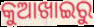
କୁଆଖାଇରୁ